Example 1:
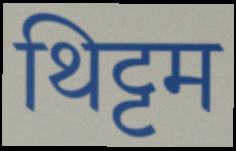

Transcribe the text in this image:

थिट्टम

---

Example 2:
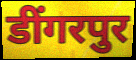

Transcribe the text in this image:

डींगरपुर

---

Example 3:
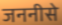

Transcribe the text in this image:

जननीसे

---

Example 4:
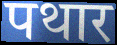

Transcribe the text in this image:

पथार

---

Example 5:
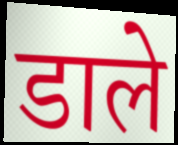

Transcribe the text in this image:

डाले